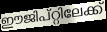
ഈജിപ്റ്റിലേക്ക്